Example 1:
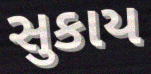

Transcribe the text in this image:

સુકાય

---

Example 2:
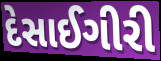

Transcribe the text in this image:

દેસાઈગીરી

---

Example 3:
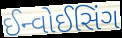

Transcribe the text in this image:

ઈન્વોઈસિંગ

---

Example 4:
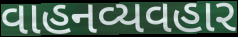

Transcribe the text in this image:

વાહનવ્યવહાર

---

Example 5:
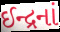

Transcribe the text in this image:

ઈન્દ્રનાં